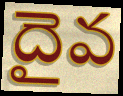
దైవ